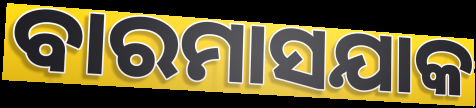
ବାରମାସଯାକ